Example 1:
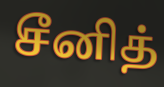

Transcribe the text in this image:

சீனித்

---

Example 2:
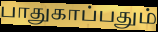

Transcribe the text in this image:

பாதுகாப்பதும்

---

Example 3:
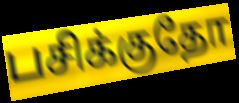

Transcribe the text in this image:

பசிக்குதோ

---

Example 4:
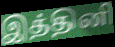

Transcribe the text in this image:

இத்தினி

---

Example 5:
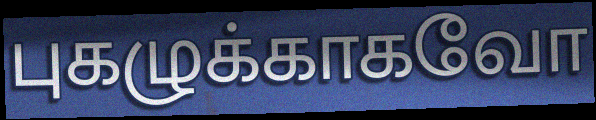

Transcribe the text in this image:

புகழுக்காகவோ